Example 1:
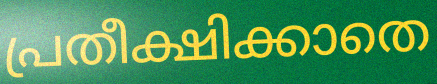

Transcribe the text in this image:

പ്രതീക്ഷിക്കാതെ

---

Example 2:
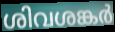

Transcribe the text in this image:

ശിവശങ്കർ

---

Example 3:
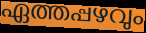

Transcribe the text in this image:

ഏത്തപ്പഴവും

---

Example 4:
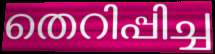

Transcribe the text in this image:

തെറിപ്പിച്ച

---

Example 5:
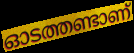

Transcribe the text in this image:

ഓടത്തണ്ടാണ്